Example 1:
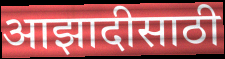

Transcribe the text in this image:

आझादीसाठी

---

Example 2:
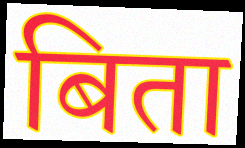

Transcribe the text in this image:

बिता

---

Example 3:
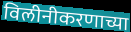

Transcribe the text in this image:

विलीनीकरणाच्या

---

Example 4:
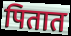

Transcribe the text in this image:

पितात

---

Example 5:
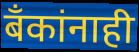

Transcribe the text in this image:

बँकांनाही